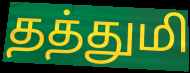
தத்துமி